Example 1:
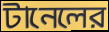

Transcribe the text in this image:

টানেলের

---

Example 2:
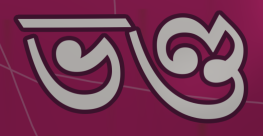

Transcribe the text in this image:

ভণ্ড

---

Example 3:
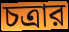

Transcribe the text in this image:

চত্রার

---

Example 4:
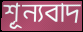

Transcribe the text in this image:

শূন্যবাদ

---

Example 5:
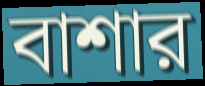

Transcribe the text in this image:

বাশার